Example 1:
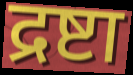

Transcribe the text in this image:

द्रष्टा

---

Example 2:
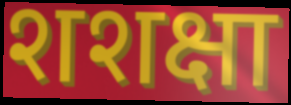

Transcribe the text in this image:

शशक्षा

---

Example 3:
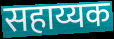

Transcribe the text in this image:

सहाय्यक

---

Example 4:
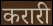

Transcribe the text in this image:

करारी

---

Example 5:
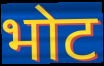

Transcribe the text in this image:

भोट